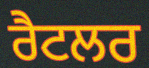
ਰੈਟਲਰ